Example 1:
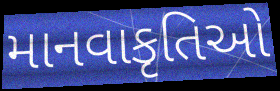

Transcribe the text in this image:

માનવાકૃતિઓ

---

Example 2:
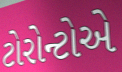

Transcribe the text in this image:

ટોરોન્ટોએ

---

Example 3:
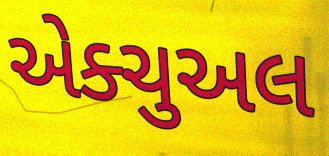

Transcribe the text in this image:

એક્ચુઅલ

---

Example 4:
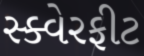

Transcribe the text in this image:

સ્ક્વેરફીટ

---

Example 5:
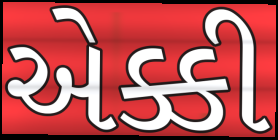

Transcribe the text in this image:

એક્કી